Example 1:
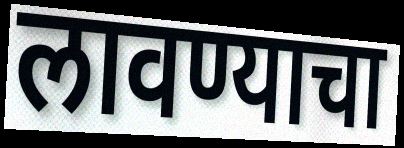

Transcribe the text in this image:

लावण्याचा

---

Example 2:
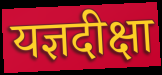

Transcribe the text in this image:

यज्ञदीक्षा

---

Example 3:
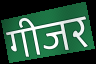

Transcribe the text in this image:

गीजर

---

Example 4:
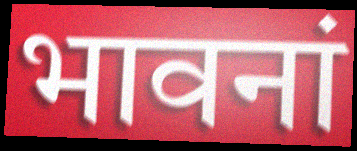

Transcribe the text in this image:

भावनां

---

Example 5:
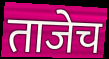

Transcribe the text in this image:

ताजेच